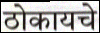
ठोकायचे